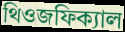
থিওজফিক্যাল